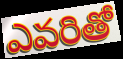
ఎవరితో